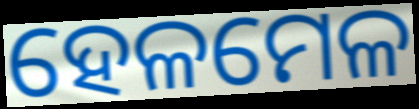
ହେଳମେଳ